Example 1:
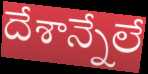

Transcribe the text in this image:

దేశాన్నేలే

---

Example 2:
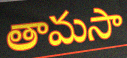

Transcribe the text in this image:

తామసా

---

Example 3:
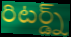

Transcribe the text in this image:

రిటర్డ్న్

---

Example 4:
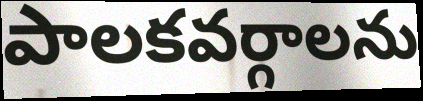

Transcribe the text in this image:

పాలకవర్గాలను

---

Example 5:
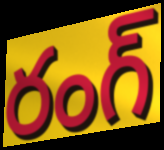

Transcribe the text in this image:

రంగ్